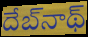
దేబ్‌నాథ్